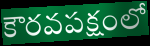
కౌరవపక్షంలో